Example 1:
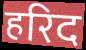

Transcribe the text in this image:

हरिद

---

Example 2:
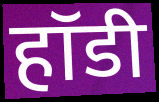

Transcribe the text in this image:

हॉडी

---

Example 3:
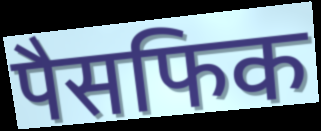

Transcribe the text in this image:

पैसफिक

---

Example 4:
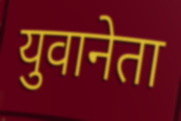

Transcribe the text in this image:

युवानेता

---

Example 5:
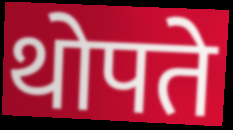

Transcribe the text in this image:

थोपते